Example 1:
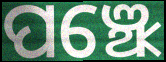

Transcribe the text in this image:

ପଞ୍ଝେ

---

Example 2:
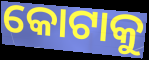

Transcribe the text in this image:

କୋଟାକୁ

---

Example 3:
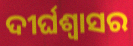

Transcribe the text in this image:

ଦୀର୍ଘଶ୍ବାସର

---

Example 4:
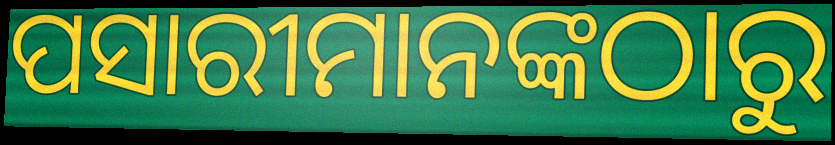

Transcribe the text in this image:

ପସାରୀମାନଙ୍କଠାରୁ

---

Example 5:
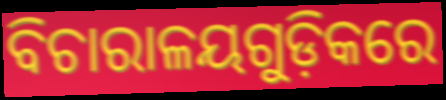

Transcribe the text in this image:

ବିଚାରାଳୟଗୁଡ଼ିକରେ